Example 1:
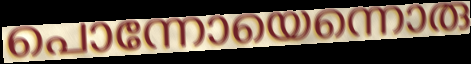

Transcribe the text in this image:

പൊന്നോയെന്നൊരു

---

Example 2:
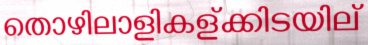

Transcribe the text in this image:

തൊഴിലാളികള്ക്കിടയില്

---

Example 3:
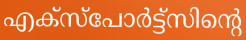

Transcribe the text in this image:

എക്സ്പോർട്ട്സിന്റെ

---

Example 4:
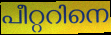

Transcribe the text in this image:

പീറ്ററിനെ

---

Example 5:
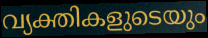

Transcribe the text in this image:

വ്യക്തികളുടെയും